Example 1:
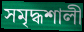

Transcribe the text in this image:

সমৃদ্ধশালী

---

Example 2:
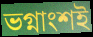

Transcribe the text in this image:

ভগ্নাংশই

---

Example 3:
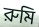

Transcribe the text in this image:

ৰুমি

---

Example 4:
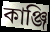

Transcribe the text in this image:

কাঞ্জি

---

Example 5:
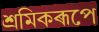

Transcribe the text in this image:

শ্ৰমিকৰূপে